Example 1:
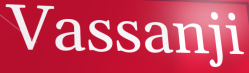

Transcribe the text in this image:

Vassanji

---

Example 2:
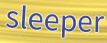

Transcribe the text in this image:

sleeper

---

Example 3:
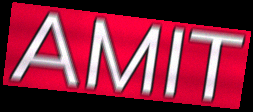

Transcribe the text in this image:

AMIT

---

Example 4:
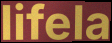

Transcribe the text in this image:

lifela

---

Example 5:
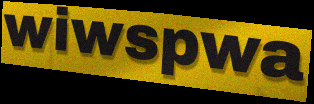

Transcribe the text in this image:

wiwspwa